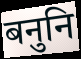
बनुनि